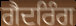
ਗੈਦਰਿੰਗ